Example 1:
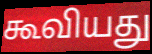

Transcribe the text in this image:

கூவியது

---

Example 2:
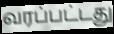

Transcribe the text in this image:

வரப்பட்டது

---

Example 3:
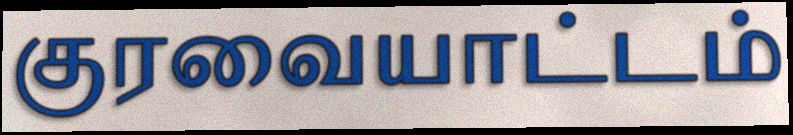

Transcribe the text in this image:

குரவையாட்டம்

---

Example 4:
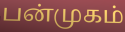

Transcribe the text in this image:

பன்முகம்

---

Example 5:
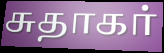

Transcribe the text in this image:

சுதாகர்